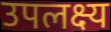
उपलक्ष्य